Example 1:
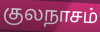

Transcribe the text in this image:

குலநாசம்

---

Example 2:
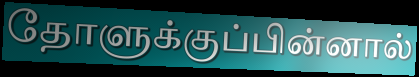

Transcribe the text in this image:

தோளுக்குப்பின்னால்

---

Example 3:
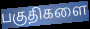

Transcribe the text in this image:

பகுதிகளை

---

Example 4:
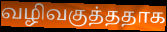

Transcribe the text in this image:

வழிவகுத்ததாக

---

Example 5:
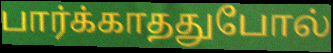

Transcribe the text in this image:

பார்க்காததுபோல்